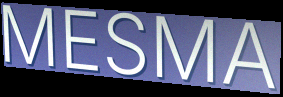
MESMA